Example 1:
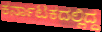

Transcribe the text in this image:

ಕರ್ನಾಟಕದಲ್ಲಿದ್ದ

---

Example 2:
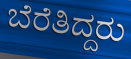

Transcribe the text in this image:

ಬೆರೆತಿದ್ದರು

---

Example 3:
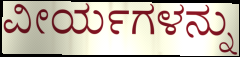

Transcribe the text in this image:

ವೀರ್ಯಗಳನ್ನು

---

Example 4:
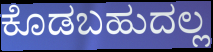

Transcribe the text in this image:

ಕೊಡಬಹುದಲ್ಲ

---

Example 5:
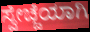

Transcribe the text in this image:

ಸ್ವೇಚ್ಚೆಯಾಗಿ